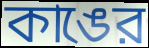
কাঙের